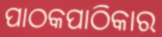
ପାଠକପାଠିକାର